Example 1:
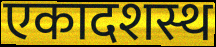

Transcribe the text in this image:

एकादशस्थ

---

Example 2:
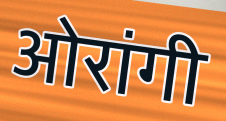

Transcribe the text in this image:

ओरांगी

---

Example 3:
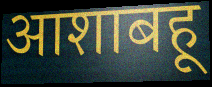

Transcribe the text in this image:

आशाबहू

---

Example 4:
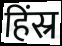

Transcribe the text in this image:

हिंस्र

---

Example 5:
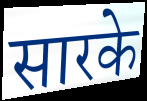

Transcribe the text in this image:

सारके